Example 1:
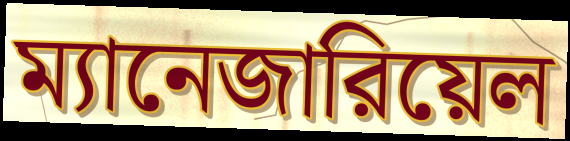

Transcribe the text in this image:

ম্যানেজারিয়েল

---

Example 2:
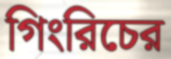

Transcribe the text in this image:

গিংরিচের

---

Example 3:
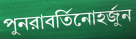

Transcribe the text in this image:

পুনরাবর্তিনোহর্জুন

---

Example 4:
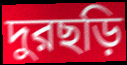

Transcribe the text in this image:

দুরছড়ি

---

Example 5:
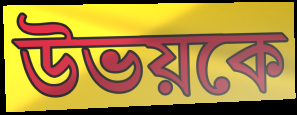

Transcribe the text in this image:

উভয়কে